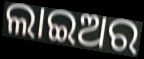
ଲାଇଅର